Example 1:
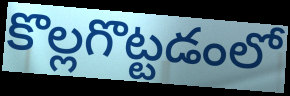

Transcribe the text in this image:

కొల్లగొట్టడంలో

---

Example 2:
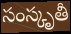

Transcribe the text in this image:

సంస్కృతీ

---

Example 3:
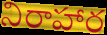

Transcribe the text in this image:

నిరాహార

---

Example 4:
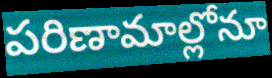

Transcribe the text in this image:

పరిణామాల్లోనూ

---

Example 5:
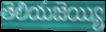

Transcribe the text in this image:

తెలియజెయ్యి